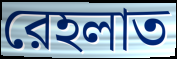
রেহলাত